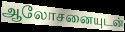
ஆலோசனையுடன்